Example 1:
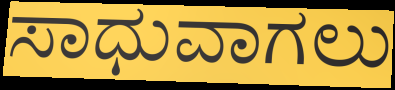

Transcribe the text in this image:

ಸಾಧುವಾಗಲು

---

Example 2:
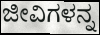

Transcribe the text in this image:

ಜೀವಿಗಳನ್ನ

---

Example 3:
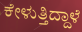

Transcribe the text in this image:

ಕೇಳುತ್ತಿದ್ದಾಳೆ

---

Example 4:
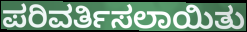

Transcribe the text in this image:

ಪರಿವರ್ತಿಸಲಾಯಿತು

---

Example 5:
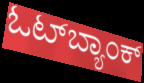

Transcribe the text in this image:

ಓಟ್‌ಬ್ಯಾಂಕ್